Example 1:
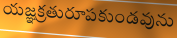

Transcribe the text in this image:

యజ్ఞక్రతురూపకుండవును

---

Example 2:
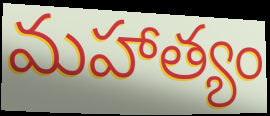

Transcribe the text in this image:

మహాత్యం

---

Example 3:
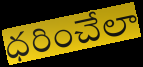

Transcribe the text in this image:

ధరించేలా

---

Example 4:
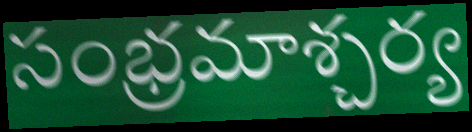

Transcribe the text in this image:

సంభ్రమాశ్చర్య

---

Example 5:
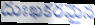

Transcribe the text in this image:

దుఃఖకరమైన